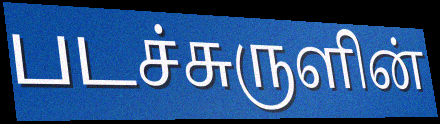
படச்சுருளின்